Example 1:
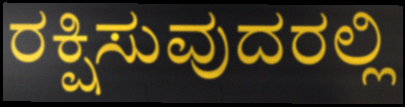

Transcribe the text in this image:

ರಕ್ಷಿಸುವುದರಲ್ಲಿ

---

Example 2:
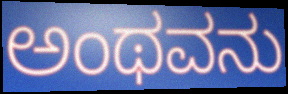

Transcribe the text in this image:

ಅಂಥವನು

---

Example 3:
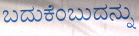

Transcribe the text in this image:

ಬದುಕೆಂಬುದನ್ನು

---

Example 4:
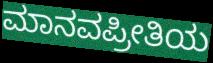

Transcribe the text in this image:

ಮಾನವಪ್ರೀತಿಯ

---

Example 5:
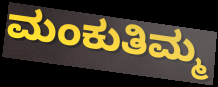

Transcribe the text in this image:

ಮಂಕುತಿಮ್ಮ